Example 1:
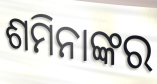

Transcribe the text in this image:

ଶମିନାଙ୍କର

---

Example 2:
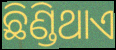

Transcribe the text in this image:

ଛିଣ୍ଡିଥାଏ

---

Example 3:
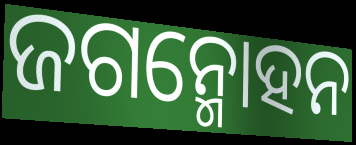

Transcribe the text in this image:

ଜଗନ୍ମୋହନ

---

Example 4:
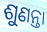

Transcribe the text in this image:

ଶୁଣନ୍ତା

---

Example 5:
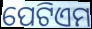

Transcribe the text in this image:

ପେଟିଏମ